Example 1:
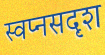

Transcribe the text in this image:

स्वप्नसदृश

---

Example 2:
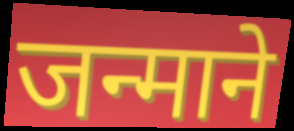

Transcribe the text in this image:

जन्माने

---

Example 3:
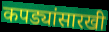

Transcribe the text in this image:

कपड्यांसारखी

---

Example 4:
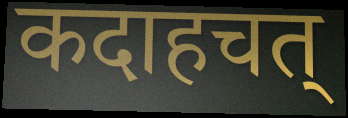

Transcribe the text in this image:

कदाहचत्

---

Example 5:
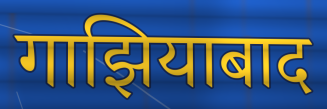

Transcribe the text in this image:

गाझियाबाद